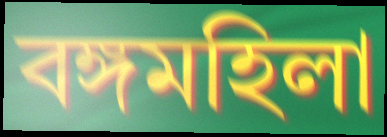
বঙ্গমহিলা